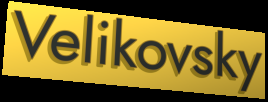
Velikovsky